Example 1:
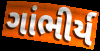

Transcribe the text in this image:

ગાંભીર્ય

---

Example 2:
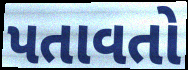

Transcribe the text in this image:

પતાવતો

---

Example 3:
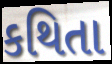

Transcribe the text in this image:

કથિતા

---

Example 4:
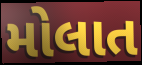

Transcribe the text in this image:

મોલાત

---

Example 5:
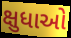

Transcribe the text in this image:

ક્ષુધાઓ